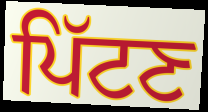
ਪਿੱਟਣ